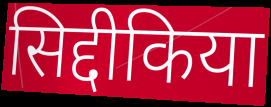
सिद्दीकिया